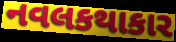
નવલકથાકાર